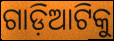
ଗାଡ଼ିଆଟିକୁ